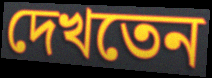
দেখতেন